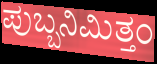
ಪುಬ್ಬನಿಮಿತ್ತಂ